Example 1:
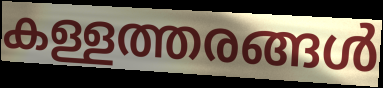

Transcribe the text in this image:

കള്ളത്തരങ്ങൾ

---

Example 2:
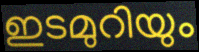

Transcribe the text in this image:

ഇടമുറിയും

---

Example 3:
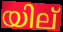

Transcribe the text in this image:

യില്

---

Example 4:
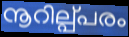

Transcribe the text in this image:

നൂറില്പ്പരം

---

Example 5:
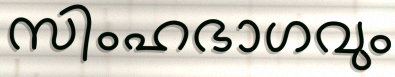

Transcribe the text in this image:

സിംഹഭാഗവും